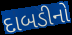
દાબડીનો